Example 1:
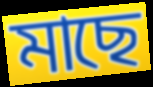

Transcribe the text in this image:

মাছে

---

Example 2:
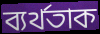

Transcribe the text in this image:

ব্যৰ্থতাক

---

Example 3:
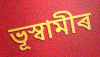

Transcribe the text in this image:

ভূস্বামীৰ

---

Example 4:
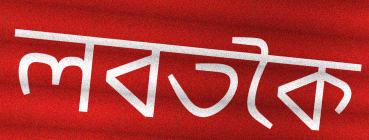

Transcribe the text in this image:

লবতকৈ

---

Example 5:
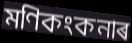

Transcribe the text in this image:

মণিকংকনাৰ